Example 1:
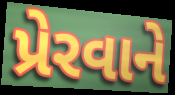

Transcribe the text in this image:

પ્રેરવાને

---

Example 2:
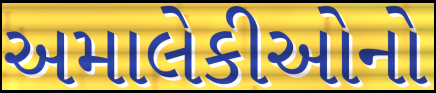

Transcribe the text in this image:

અમાલેકીઓનો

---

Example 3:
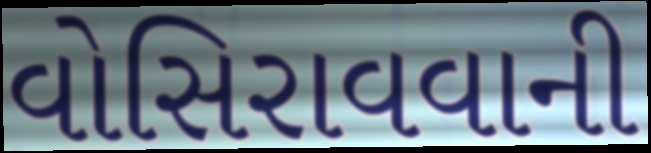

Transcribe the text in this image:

વોસિરાવવાની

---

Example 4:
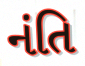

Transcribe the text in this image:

નંતિ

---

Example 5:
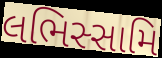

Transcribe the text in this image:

લભિસ્સામિ